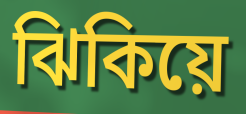
ঝিকিয়ে